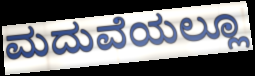
ಮದುವೆಯಲ್ಲೂ